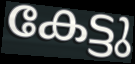
കേട്ടു